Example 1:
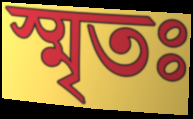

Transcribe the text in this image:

স্মৃতঃ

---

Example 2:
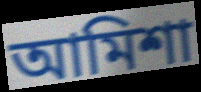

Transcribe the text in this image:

আমিশা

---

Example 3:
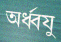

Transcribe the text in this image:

অর্ধ্বযু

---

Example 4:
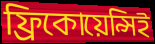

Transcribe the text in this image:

ফ্রিকোয়েন্সিই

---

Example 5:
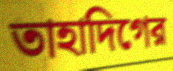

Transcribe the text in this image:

তাহাদিগের